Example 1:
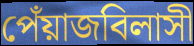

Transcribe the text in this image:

পেঁয়াজবিলাসী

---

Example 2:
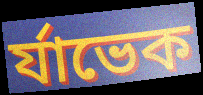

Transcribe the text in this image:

র্যাভেক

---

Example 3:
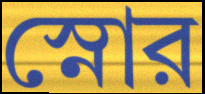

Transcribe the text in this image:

স্নোর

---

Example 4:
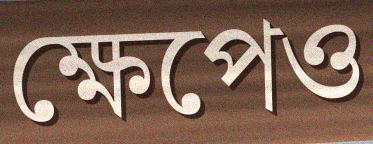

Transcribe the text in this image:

ক্ষেপেও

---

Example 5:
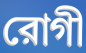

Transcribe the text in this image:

রোগী